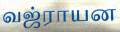
வஜ்ராயன